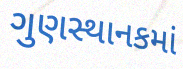
ગુણસ્થાનકમાં